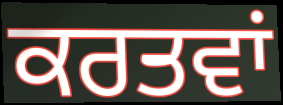
ਕਰਤਵਾਂ